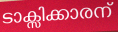
ടാക്സിക്കാരന്